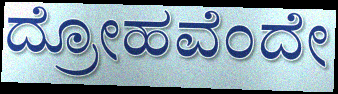
ದ್ರೋಹವೆಂದೇ